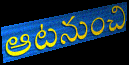
ఆటనుంచి